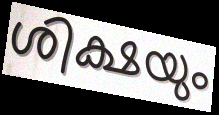
ശിക്ഷയും